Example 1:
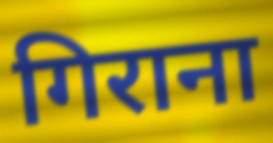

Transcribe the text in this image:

गिराना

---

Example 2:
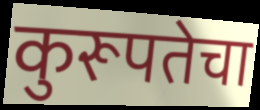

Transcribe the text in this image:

कुरूपतेचा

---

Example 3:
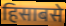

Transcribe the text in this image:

हिसाबसे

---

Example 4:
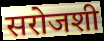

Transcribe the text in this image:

सरोजशी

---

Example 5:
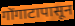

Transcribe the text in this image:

गोंगाटापासून